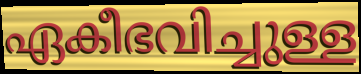
ഏകീഭവിച്ചുള്ള